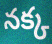
నక్క